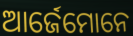
ଆର୍ଜେମୋନେ